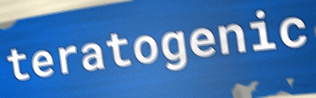
teratogenic